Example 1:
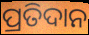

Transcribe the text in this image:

ପ୍ରତିଦାନ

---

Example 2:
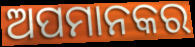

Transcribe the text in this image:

ଅପମାନକର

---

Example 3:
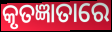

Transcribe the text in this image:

କୃତଜ୍ଞାତାରେ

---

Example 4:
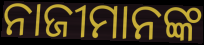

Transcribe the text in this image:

ନାଜୀମାନଙ୍କ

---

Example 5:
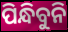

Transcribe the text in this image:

ପିନ୍ଧିବୁନି